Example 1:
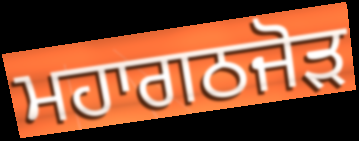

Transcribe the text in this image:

ਮਹਾਗਠਜੋੜ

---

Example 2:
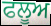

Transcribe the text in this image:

ਫਲੂਅ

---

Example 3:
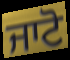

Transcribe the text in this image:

ਜਾਟੋ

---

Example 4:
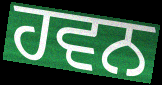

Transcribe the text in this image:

ਹਵਨ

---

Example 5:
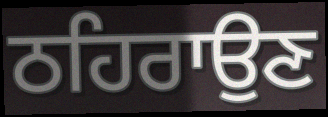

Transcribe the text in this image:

ਠਹਿਰਾਉਣ